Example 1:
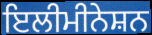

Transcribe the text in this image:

ਇਲੀਮੀਨੇਸ਼ਨ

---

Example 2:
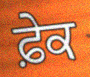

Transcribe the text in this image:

ਫ਼ੇਕ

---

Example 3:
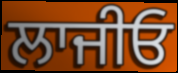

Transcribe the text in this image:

ਲਾਜੀਓ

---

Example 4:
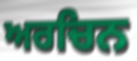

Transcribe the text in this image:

ਅਰਚਿਨ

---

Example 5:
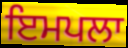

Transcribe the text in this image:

ਇਮਪਲਾ